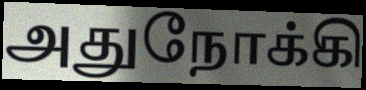
அதுநோக்கி